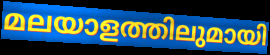
മലയാളത്തിലുമായി